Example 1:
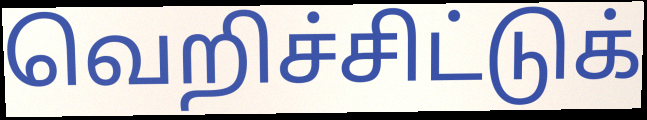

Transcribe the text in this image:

வெறிச்சிட்டுக்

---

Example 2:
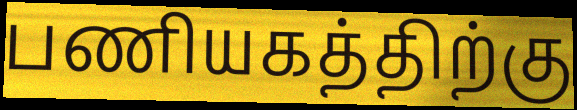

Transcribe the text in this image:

பணியகத்திற்கு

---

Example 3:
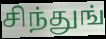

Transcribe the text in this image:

சிந்துங்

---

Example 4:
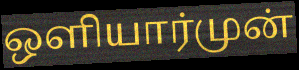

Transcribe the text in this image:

ஒளியார்முன்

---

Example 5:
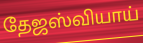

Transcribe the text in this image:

தேஜஸ்வியாய்